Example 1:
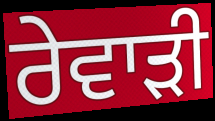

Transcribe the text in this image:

ਰੇਵਾਡ਼ੀ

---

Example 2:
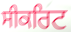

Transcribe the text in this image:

ਸੀਕਰਿਟ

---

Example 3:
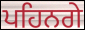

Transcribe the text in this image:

ਪਹਿਨਗੇ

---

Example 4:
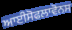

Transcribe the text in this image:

ਆਈਸੋਫਲਾਵੋਨਸ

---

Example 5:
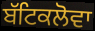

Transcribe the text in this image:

ਬੱਟਿਕਲੋਵਾ